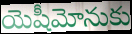
యెషీమోనుకు